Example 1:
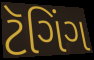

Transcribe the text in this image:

ટૅગિંગ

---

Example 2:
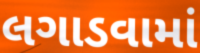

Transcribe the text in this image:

લગાડવામાં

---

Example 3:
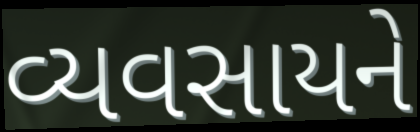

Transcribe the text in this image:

વ્યવસાયને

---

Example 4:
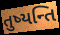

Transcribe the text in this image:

તુષ્યન્તિ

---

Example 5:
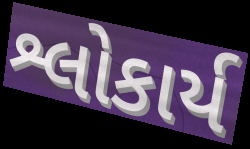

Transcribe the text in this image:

શ્લોકાર્ય